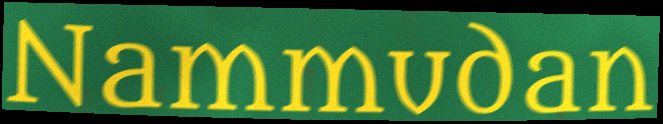
Nammudan